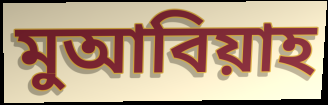
মুআবিয়াহ